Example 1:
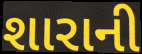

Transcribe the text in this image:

શારાની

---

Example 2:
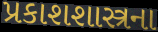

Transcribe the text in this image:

પ્રકાશશાસ્ત્રના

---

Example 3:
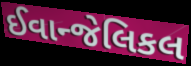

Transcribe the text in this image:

ઈવાન્જેલિકલ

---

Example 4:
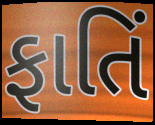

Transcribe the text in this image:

ફાતિં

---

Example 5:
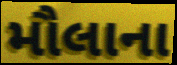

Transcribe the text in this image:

મૌલાના